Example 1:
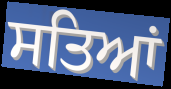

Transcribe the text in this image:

ਸਤਿਆਂ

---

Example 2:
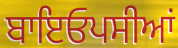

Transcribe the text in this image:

ਬਾਇਓਪਸੀਆਂ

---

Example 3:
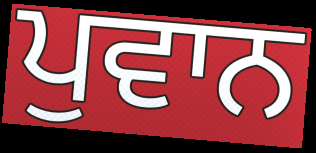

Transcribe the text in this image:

ਪੁਵਾਨ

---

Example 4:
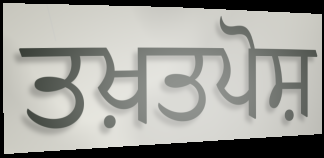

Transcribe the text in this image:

ਤਖ਼ਤਪੋਸ਼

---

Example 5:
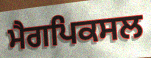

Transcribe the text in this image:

ਮੈਗਪਿਕਸਲ